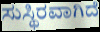
ಸುಸ್ಥಿರವಾಗಿದೆ